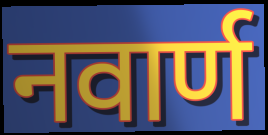
नवार्ण